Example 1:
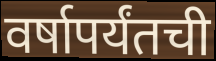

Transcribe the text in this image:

वर्षापर्यंतची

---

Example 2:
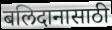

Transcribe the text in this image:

बलिदानासाठी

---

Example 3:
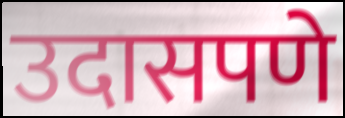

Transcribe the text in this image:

उदासपणे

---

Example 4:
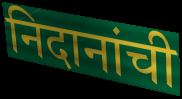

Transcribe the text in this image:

निदानांची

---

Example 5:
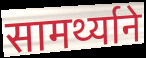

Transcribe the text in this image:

सामर्थ्याने